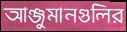
আঞ্জুমানগুলির